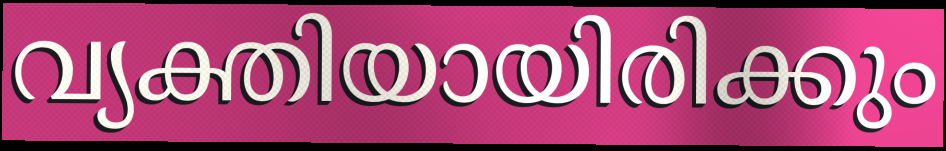
വ്യക്തിയായിരിക്കും